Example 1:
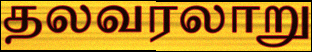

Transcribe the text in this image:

தலவரலாறு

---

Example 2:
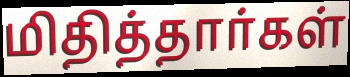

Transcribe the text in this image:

மிதித்தார்கள்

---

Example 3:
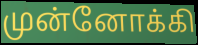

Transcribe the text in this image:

முன்னோக்கி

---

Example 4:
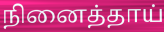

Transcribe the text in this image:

நினைத்தாய்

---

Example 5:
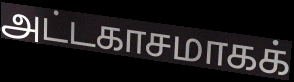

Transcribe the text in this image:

அட்டகாசமாகக்